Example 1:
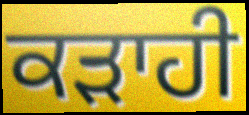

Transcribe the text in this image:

ਕੜਾਹੀ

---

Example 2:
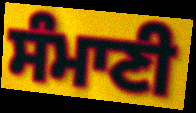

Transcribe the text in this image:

ਸੰਮਾਣੀ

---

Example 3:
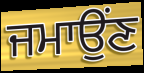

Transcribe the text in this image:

ਜਮਾਉਂਣ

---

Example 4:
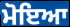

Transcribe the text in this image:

ਮੋਇਆ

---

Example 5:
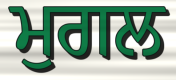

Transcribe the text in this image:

ਮੁਗਲ